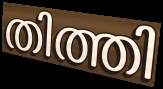
തിത്തി